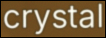
crystal